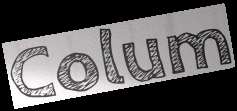
Colum